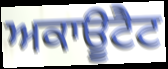
ਅਕਾਊਟੈਟ